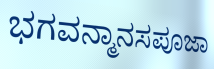
ಭಗವನ್ಮಾನಸಪೂಜಾ